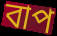
বাপ